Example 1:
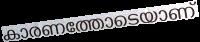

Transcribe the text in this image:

കാരണത്തോടെയാണ്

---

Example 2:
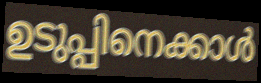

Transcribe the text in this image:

ഉടുപ്പിനെക്കാൾ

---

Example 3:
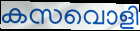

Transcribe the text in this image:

കസവൊളി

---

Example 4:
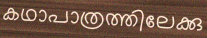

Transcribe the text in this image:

കഥാപാത്രത്തിലേക്കു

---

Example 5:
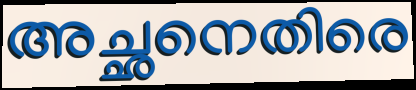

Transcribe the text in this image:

അച്ഛനെതിരെ